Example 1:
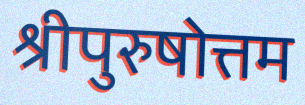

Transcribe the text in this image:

श्रीपुरुषोत्तम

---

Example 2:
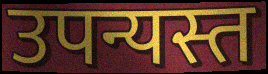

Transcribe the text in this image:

उपन्यस्त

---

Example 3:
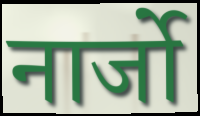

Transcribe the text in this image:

नार्जो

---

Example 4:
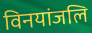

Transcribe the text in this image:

विनयांजलि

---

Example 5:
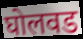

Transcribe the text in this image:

घोलवड